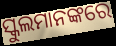
ସ୍କୁଲମାନଙ୍କରେ